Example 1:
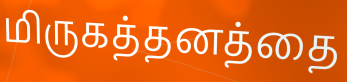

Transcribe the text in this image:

மிருகத்தனத்தை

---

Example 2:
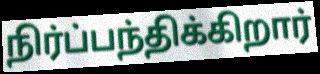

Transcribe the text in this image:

நிர்ப்பந்திக்கிறார்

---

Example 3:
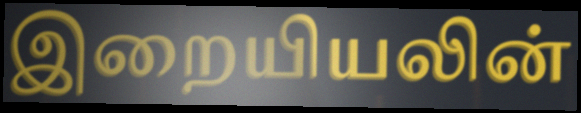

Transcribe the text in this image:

இறையியலின்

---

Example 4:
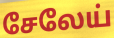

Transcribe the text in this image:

சேலேய்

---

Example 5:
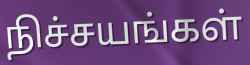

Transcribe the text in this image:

நிச்சயங்கள்